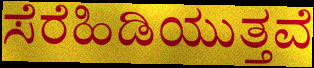
ಸೆರೆಹಿಡಿಯುತ್ತವೆ